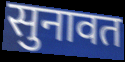
सुनावत